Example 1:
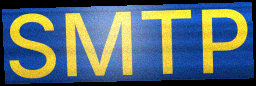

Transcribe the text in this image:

SMTP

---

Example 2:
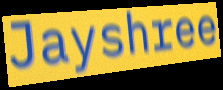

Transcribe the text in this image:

Jayshree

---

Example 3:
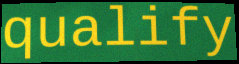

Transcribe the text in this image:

qualify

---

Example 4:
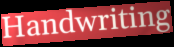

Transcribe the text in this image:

Handwriting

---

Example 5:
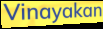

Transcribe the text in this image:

Vinayakan